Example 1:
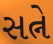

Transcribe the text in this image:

સત્ને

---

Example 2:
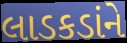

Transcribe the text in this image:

લાડકડાંને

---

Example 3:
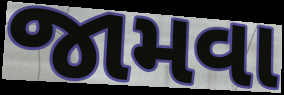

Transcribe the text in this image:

જામવા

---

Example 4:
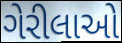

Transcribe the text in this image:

ગેરીલાઓ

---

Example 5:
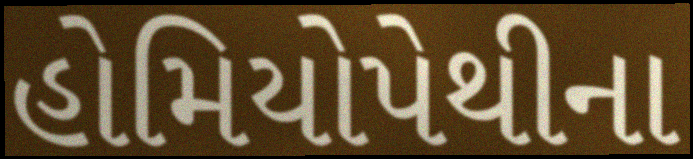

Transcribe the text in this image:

હોમિયોપેથીના